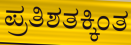
ಪ್ರತಿಶತಕ್ಕಿಂತ